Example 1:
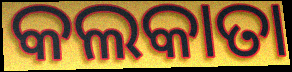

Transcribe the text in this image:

କଲକାତା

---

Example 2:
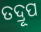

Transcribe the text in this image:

ତଦ୍ରୂପ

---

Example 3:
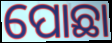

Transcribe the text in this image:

ପୋଛା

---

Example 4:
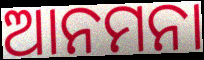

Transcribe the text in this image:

ଆନମନା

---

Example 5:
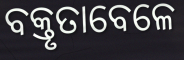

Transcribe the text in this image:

ବକ୍ତୃତାବେଳେ